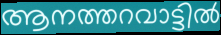
ആനത്തറവാട്ടിൽ